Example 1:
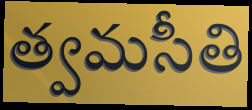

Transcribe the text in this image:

త్వమసీతి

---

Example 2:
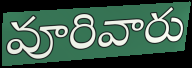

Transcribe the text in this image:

వూరివారు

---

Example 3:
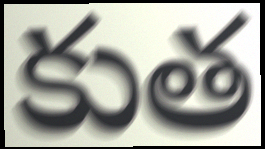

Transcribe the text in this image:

కుత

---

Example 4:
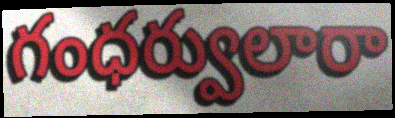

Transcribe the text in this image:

గంధర్వులారా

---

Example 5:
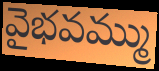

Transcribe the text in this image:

వైభవమ్ము